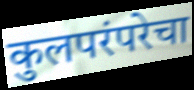
कुलपरंपरेचा